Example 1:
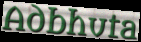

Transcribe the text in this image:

Adbhuta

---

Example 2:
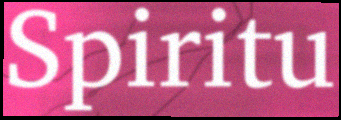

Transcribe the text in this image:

Spiritu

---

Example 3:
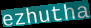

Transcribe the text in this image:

ezhutha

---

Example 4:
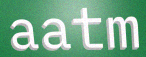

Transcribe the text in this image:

aatm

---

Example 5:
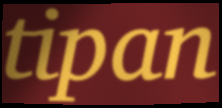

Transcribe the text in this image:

tipan